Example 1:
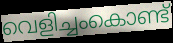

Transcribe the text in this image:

വെളിച്ചംകൊണ്ട്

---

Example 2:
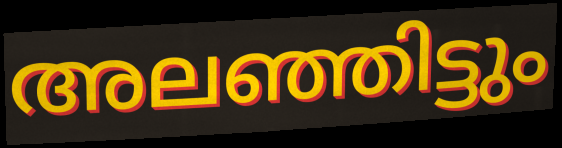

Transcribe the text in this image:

അലഞ്ഞിട്ടും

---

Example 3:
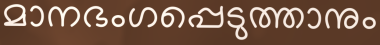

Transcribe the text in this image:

മാനഭംഗപ്പെടുത്താനും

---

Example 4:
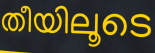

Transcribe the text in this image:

തീയിലൂടെ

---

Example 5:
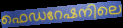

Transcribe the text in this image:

ഫെഡറേഷനിലെ